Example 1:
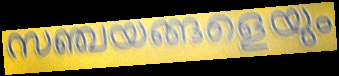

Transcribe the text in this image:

സഞ്ചയങ്ങളെയും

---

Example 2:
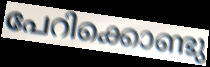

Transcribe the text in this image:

പേറിക്കൊണ്ടു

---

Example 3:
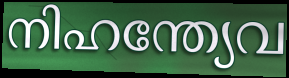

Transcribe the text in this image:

നിഹന്ത്യേവ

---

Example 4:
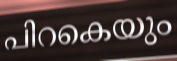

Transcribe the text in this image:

പിറകെയും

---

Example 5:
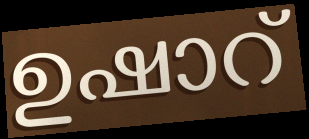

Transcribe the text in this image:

ഉഷാറ്